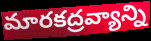
మారకద్రవ్యాన్ని